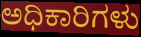
ಅಧಿಕಾರಿಗಳು